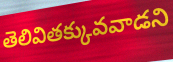
తెలివితక్కువవాడని